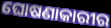
ଘୋଷଣାକାରୀର